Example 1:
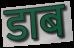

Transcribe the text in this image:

डाब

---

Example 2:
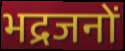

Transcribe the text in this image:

भद्रजनों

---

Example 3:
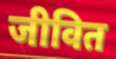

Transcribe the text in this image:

जीवित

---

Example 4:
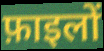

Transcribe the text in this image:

फ़ाइलों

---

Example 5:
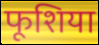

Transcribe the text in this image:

फूशिया